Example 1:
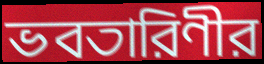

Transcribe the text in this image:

ভবতারিণীর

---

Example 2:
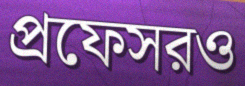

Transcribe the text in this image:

প্রফেসরও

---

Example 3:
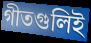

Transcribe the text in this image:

গীতগুলিই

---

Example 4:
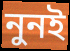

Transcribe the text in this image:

নুনই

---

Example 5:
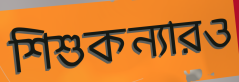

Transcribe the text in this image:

শিশুকন্যারও